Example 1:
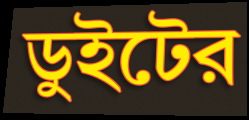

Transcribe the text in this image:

ডুইটের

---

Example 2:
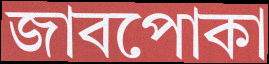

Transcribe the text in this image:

জাবপোকা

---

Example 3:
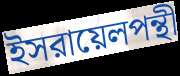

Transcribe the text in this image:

ইসরায়েলপন্থী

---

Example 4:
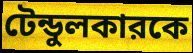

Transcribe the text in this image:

টেন্ডুলকারকে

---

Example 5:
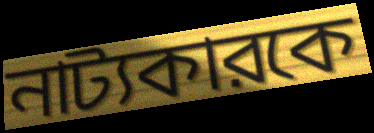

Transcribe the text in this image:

নাট্যকারকে